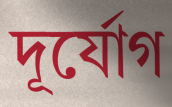
দূর্যোগ